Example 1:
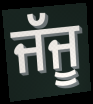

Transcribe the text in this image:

ਜੱਜੂ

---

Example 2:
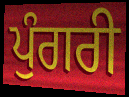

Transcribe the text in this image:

ਪੁੰਗਰੀ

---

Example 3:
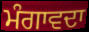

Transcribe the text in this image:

ਮੰਗਾਵਦਾ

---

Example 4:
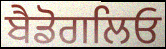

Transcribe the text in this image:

ਬੈਡੋਗਲਿਓ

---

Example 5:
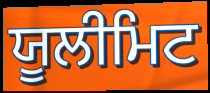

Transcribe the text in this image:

ਯੂਲੀਮਿਟ